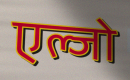
एल्जो